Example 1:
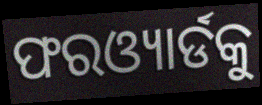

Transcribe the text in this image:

ଫରଓ୍ୟାର୍ଡକୁ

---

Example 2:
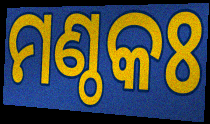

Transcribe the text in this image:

ମଣ୍ଠକଃ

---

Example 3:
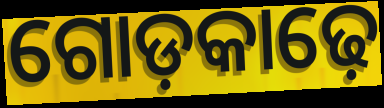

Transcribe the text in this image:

ଗୋଡ଼କାଢ଼େ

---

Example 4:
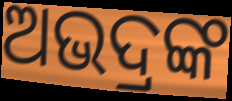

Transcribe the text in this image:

ଅଭଦ୍ରଙ୍କ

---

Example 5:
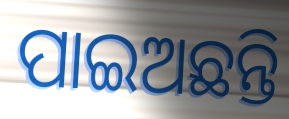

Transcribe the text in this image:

ପାଇଅଛନ୍ତି